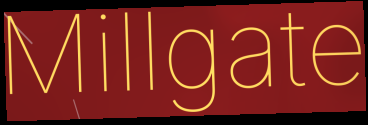
Millgate